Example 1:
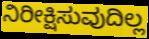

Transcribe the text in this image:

ನಿರೀಕ್ಷಿಸುವುದಿಲ್ಲ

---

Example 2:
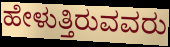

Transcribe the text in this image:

ಹೇಳುತ್ತಿರುವವರು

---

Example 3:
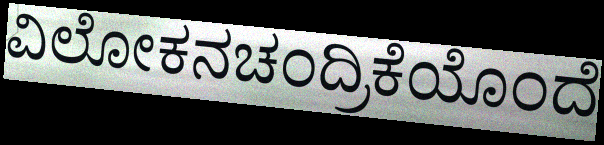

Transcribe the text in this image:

ವಿಲೋಕನಚಂದ್ರಿಕೆಯೊಂದೆ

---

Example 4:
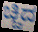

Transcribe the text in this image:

ಚ್ಚಿದ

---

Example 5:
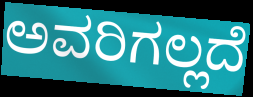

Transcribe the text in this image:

ಅವರಿಗಲ್ಲದೆ